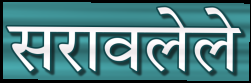
सरावलेले